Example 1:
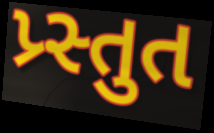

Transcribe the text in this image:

પ્ર્સ્તુત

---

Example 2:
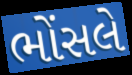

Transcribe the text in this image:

ભોંસલે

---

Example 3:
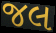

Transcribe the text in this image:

જલ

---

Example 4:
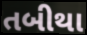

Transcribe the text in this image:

તબીથા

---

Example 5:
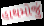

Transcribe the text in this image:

હાથમોજું